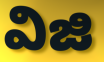
విజి